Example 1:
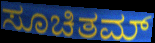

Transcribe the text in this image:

ಸೂಚಿತಮ್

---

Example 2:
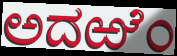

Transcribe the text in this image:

ಅದಱೆಂ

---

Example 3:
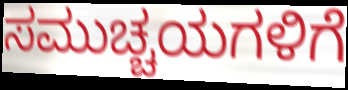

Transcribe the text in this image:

ಸಮುಚ್ಚಯಗಳಿಗೆ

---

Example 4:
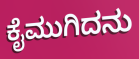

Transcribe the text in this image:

ಕೈಮುಗಿದನು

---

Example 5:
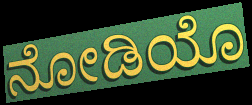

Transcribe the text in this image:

ನೋಡಿಯೊ